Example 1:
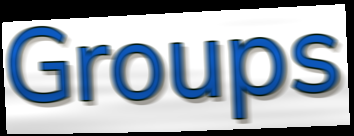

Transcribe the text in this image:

Groups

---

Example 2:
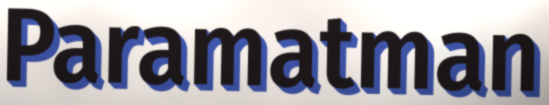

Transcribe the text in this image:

Paramatman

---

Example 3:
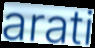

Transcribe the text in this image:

arati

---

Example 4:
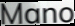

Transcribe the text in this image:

Mano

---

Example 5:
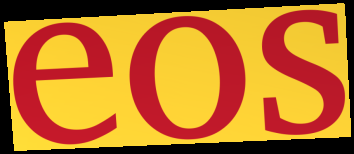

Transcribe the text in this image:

eos